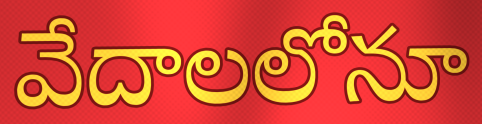
వేదాలలోనూ